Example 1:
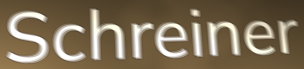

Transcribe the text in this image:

Schreiner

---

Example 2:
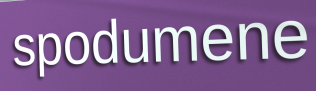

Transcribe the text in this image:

spodumene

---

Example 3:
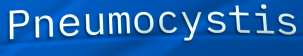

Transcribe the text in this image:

Pneumocystis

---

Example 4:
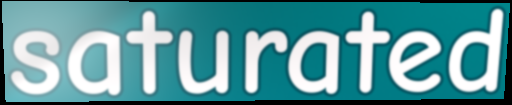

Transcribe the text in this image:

saturated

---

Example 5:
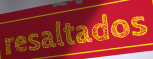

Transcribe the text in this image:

resaltados